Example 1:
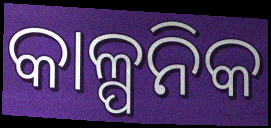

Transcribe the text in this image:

କାଳ୍ପନିକ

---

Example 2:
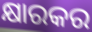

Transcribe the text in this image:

କ୍ଷାରକର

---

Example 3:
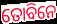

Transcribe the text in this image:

ତୋବିନେ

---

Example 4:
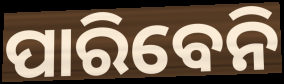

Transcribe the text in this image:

ପାରିବେନି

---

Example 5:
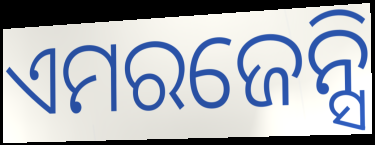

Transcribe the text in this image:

ଏମରଜେନ୍ସି